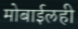
मोबाईलही